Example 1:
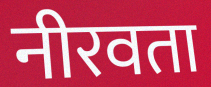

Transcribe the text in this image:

नीरवता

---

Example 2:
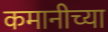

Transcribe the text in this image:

कमानीच्या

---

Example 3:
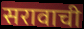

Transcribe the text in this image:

सरावाची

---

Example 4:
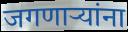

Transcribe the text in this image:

जगणाऱ्यांना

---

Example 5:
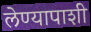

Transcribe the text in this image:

लेण्यापाशी